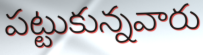
పట్టుకున్నవారు